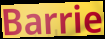
Barrie